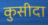
कुसीदा